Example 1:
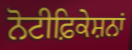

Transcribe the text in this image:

ਨੋਟੀਫ਼ਿਕੇਸ਼ਨਾਂ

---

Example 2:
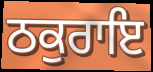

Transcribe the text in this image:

ਠਕੁਰਾਇ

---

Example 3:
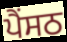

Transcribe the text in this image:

ਪੈਂਸਠ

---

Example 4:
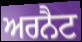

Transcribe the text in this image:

ਅਰਨੈਟ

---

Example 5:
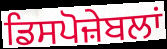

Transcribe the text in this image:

ਡਿਸਪੋਜ਼ੇਬਲਾਂ